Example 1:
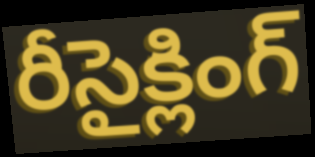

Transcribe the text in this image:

రీసైక్లింగ్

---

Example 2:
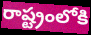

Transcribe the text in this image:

రాష్ట్రంలోకి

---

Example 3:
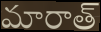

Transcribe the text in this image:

మారాత్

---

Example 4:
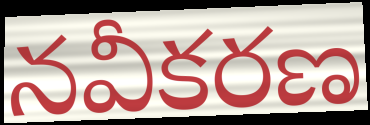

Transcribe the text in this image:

నవీకరణ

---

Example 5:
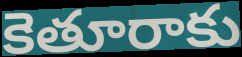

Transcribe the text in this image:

కెతూరాకు